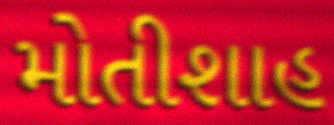
મોતીશાહ